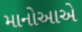
માનોઆએ